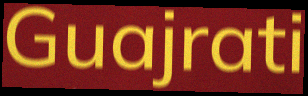
Guajrati